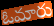
ఓమారు